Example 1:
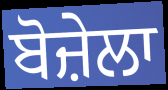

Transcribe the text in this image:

ਬੋਜ਼ੇਲਾ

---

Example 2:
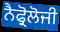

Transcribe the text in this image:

ਨੈਫ੍ਰੋਲੋਜੀ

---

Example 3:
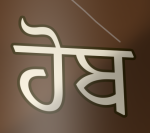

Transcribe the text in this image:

ਹੋਬ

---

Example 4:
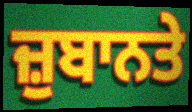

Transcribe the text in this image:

ਜ਼ੁਬਾਨਤੇ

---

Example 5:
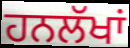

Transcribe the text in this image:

ਹਨਲੱਖਾਂ